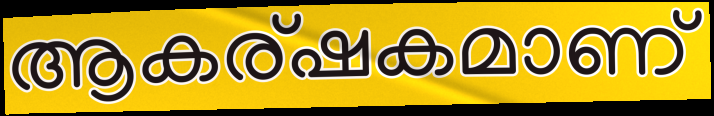
ആകര്ഷകമാണ്